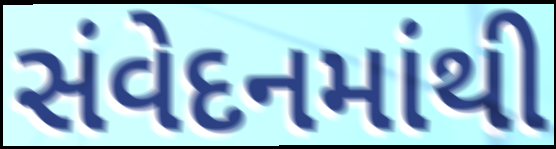
સંવેદનમાંથી